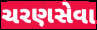
ચરણસેવા